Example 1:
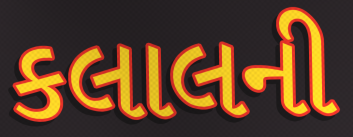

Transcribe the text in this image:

કલાલની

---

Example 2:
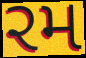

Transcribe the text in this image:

રમ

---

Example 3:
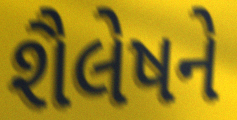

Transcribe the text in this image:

શૈલેષને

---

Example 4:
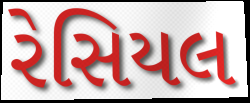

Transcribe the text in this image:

રેસિયલ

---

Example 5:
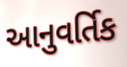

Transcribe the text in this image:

આનુવર્તિક